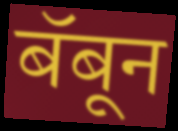
बॅबून